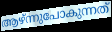
ആഴ്ന്നുപോകുന്നത്